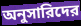
অনুসারিদের